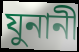
যুনানী